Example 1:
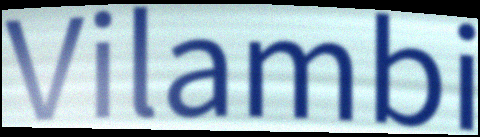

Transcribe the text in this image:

Vilambi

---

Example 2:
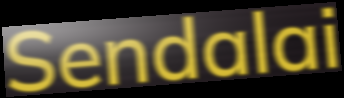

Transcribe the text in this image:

Sendalai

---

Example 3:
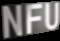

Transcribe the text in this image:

NFU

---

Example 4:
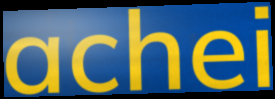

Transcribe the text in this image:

achei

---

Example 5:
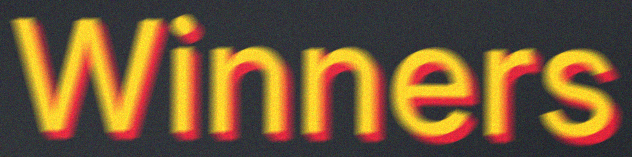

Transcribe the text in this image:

Winners